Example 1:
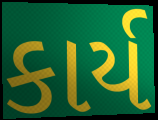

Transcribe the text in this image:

કાર્ય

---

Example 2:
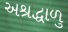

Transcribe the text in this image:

અશ્રદ્ધાળુ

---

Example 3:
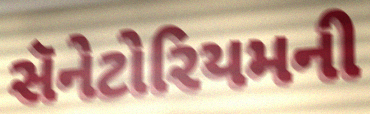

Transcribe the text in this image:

સૅનેટોરિયમની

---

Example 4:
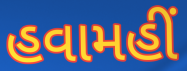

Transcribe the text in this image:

હવામહીં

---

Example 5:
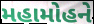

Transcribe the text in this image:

મહામોહને